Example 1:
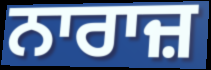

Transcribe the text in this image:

ਨਾਰਾਜ਼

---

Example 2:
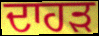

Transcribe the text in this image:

ਦਾਹੜ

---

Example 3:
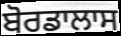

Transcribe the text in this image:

ਬੋਰਡਾਲਾਸ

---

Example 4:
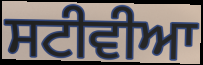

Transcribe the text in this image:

ਸਟੀਵੀਆ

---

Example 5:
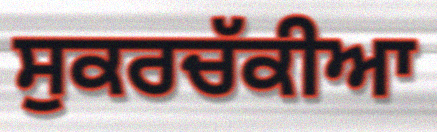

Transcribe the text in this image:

ਸੁਕਰਚੱਕੀਆ